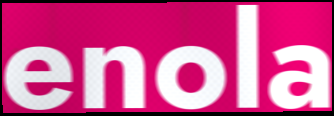
enola